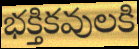
భక్తికవులకి